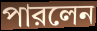
পারলেন